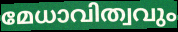
മേധാവിത്വവും